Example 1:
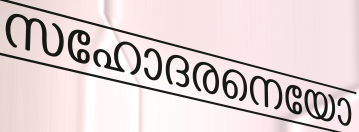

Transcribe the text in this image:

സഹോദരനെയോ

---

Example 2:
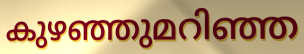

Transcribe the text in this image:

കുഴഞ്ഞുമറിഞ്ഞ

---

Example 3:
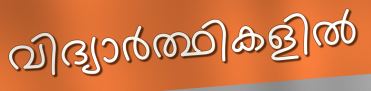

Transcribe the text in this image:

വിദ്യാർത്ഥികളിൽ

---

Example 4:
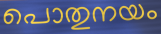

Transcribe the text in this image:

പൊതുനയം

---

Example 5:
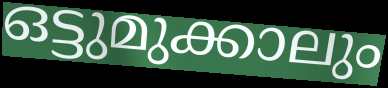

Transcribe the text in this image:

ഒട്ടുമുക്കാലും